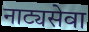
नाट्यसेवा